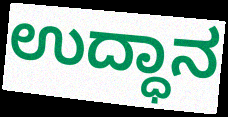
ಉದ್ಧಾನ